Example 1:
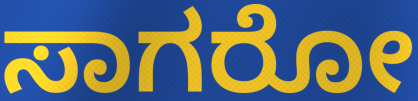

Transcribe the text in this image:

ಸಾಗರೋ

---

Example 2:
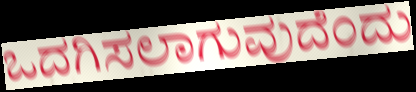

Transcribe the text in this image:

ಒದಗಿಸಲಾಗುವುದೆಂದು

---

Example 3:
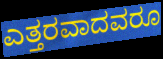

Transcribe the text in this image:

ಎತ್ತರವಾದವರೂ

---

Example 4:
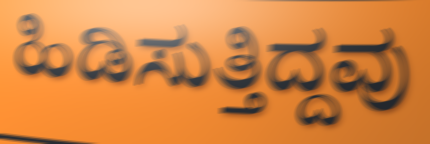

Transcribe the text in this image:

ಹಿಡಿಸುತ್ತಿದ್ದವು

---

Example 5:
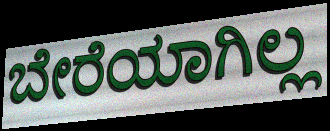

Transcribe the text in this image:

ಬೇರೆಯಾಗಿಲ್ಲ